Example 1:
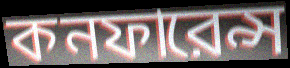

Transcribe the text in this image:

কনফারেন্স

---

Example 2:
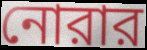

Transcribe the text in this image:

নোরার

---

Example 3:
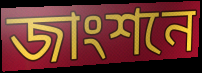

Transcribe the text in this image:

জাংশনে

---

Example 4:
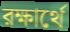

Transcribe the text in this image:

রক্ষার্থে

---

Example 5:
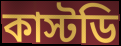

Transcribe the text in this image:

কাস্টডি